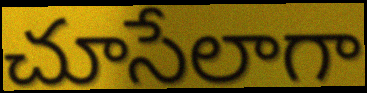
చూసేలాగా